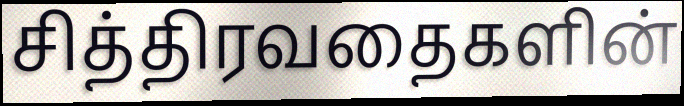
சித்திரவதைகளின்